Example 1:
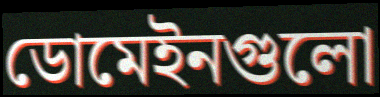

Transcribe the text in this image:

ডোমেইনগুলো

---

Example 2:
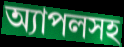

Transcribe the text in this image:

অ্যাপলসহ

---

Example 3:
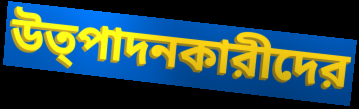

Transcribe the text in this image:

উত্পাদনকারীদের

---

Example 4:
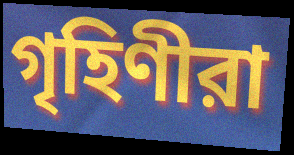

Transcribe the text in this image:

গৃহিণীরা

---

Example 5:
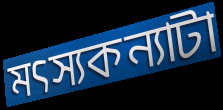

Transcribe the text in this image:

মৎস্যকন্যাটা